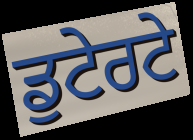
ਡੁਟੇਰਟੇ